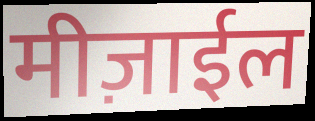
मीज़ाईल